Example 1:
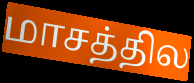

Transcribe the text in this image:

மாசத்தில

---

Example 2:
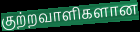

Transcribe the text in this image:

குற்றவாளிகளான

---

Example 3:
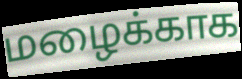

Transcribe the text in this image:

மழைக்காக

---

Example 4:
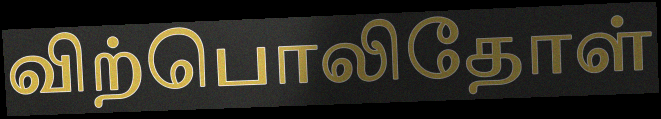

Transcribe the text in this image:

விற்பொலிதோள்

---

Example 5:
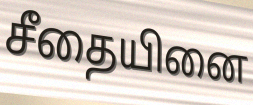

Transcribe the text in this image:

சீதையினை